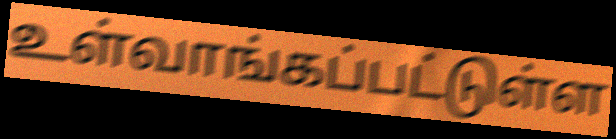
உள்வாங்கப்பட்டுள்ள